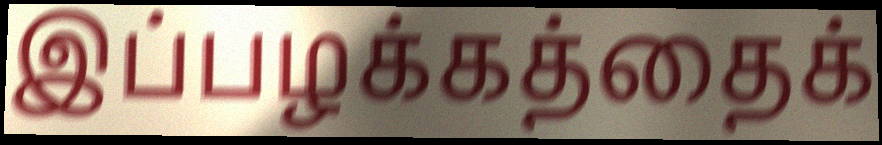
இப்பழக்கத்தைக்